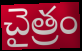
చైత్రం